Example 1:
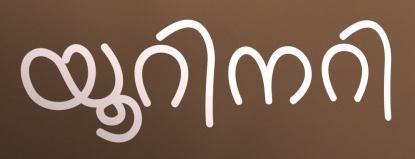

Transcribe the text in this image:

യൂറിനറി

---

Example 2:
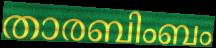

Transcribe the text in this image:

താരബിംബം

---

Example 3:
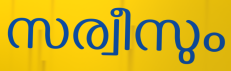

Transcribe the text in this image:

സര്വീസും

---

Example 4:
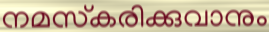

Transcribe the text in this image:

നമസ്‌കരിക്കുവാനും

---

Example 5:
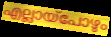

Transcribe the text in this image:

എല്ലായ്പോഴും